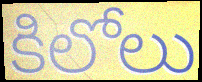
కిలోలు